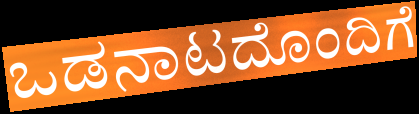
ಒಡನಾಟದೊಂದಿಗೆ